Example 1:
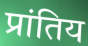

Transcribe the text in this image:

प्रांतिय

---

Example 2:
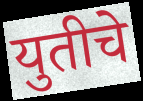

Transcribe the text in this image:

युतीचे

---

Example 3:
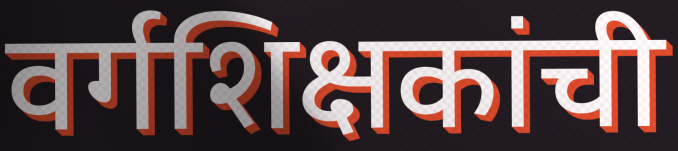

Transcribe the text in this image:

वर्गशिक्षकांची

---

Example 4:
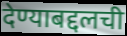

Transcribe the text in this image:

देण्याबद्दलची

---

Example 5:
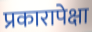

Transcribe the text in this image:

प्रकारापेक्षा